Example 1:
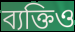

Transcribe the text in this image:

ব্যক্তিও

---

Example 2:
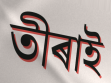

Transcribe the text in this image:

তীৰাই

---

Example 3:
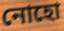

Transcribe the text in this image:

নোহো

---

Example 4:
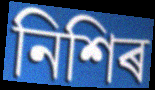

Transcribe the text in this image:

নিশিৰ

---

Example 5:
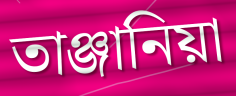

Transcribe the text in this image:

তাঞ্জানিয়া